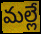
మల్లే